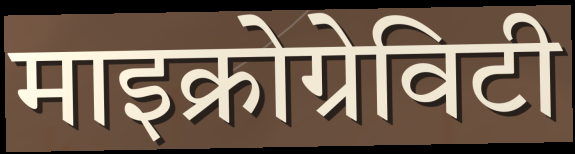
माइक्रोग्रेविटी